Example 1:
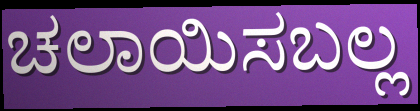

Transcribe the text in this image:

ಚಲಾಯಿಸಬಲ್ಲ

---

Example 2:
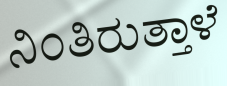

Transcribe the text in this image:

ನಿಂತಿರುತ್ತಾಳೆ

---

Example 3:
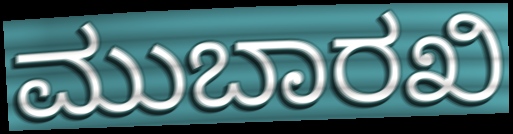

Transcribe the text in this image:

ಮುಬಾರಖಿ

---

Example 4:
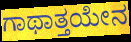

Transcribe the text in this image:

ಗಾಥಾತ್ತಯೇನ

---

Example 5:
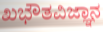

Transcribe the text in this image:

ಖಭೌತವಿಜ್ಞಾನ